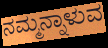
ನಮ್ಮನ್ನಾಳುವ